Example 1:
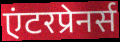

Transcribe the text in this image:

एंटरप्रेनर्स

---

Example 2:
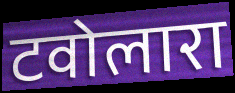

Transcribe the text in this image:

टवोलारा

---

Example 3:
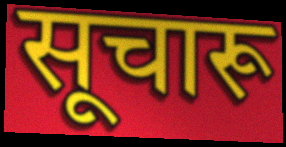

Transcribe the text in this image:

सूचारू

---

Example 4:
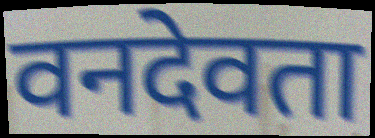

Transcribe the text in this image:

वनदेवता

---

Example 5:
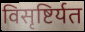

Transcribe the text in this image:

विसृष्टिर्यत